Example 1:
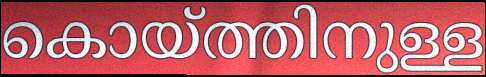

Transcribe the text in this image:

കൊയ്ത്തിനുള്ള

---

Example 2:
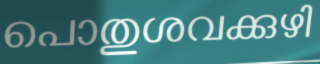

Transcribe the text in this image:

പൊതുശവക്കുഴി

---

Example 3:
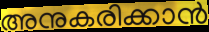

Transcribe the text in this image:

അനുകരിക്കാൻ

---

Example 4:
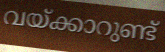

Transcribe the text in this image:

വയ്ക്കാറുണ്ട്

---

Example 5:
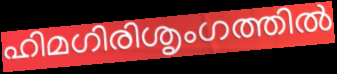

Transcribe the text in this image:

ഹിമഗിരിശൃംഗത്തിൽ